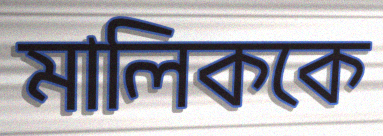
মালিককে